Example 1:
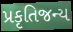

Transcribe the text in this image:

પ્રકૃતિજન્ય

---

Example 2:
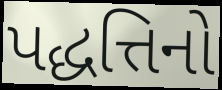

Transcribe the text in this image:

પદ્ધત્તિનો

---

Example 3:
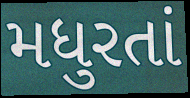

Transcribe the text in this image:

મધુરતાં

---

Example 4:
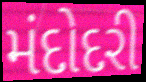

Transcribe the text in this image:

મંદોદરી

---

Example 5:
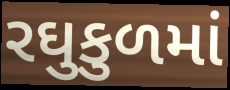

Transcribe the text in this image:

રઘુકુળમાં